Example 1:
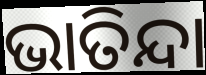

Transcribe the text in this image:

ଭାତିନ୍ଦା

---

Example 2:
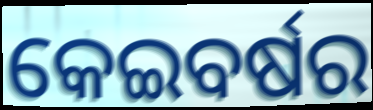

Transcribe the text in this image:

କେଇବର୍ଷର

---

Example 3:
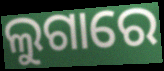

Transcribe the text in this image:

ଲୁଗାରେ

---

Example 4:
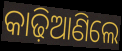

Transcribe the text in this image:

କାଢ଼ିଆଣିଲେ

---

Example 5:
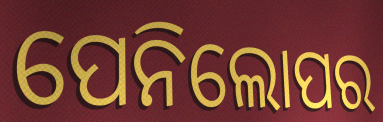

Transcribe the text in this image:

ପେନିଲୋପର